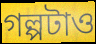
গল্পটাও